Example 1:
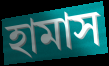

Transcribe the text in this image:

হামাস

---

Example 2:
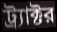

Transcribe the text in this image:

ট্র্যাক্টর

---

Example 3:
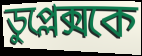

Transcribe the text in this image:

ডুপ্লেক্সকে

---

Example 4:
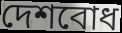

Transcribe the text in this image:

দেশবোধ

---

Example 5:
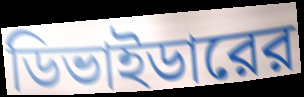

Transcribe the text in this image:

ডিভাইডারের